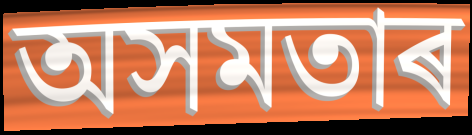
অসমতাৰ